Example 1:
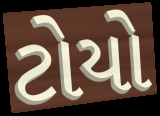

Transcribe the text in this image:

ટોયો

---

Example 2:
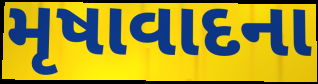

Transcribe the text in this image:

મૃષાવાદના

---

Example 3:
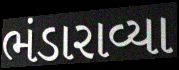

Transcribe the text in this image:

ભંડારાવ્યા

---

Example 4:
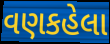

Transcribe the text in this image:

વણકહેલા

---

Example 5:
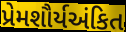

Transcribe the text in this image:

પ્રેમશૌર્યઅંકિત